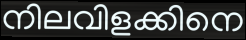
നിലവിളക്കിനെ